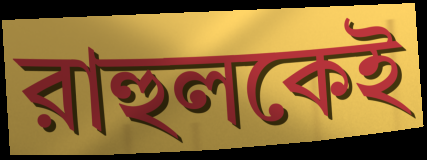
রাহুলকেই